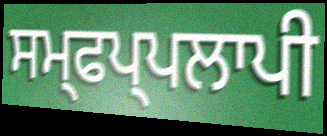
ਸਮ੍ਫਪ੍ਪਲਾਪੀ